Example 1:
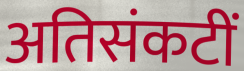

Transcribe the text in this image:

अतिसंकटीं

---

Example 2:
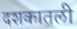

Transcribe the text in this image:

दशकातली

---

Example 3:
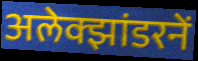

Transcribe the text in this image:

अलेक्झांडरनें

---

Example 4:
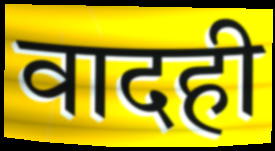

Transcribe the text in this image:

वादही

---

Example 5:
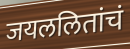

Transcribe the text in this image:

जयललितांचं